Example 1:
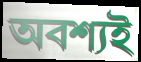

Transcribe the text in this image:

অবশ্যই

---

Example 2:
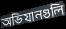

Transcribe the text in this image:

অভিযানগুলি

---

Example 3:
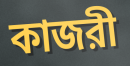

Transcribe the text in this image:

কাজরী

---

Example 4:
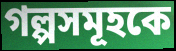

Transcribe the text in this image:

গল্পসমূহকে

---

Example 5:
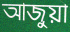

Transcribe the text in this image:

আজুয়া